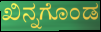
ಖಿನ್ನಗೊಂಡ